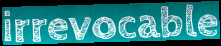
irrevocable